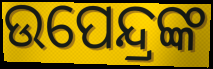
ଉପେନ୍ଦ୍ରଙ୍କ